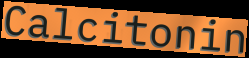
Calcitonin